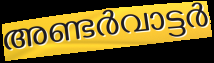
അണ്ടർവാട്ടർ